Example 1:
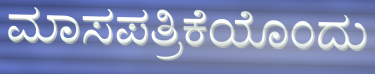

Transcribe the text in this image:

ಮಾಸಪತ್ರಿಕೆಯೊಂದು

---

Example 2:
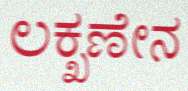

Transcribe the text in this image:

ಲಕ್ಖಣೇನ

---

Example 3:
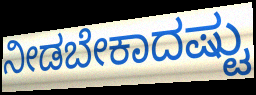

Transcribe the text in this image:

ನೀಡಬೇಕಾದಷ್ಟು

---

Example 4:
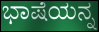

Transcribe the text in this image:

ಭಾಷೆಯನ್ನ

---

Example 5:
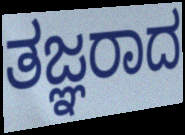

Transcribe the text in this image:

ತಜ್ಞರಾದ